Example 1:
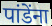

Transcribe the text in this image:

पांडेंना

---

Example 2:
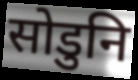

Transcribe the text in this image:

सोडुनि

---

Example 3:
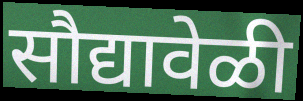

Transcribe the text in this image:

सौद्यावेळी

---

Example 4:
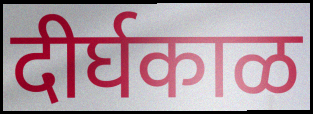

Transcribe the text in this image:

दीर्घकाळ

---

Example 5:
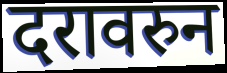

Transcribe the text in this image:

दरावरुन